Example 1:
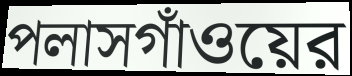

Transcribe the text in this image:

পলাসগাঁওয়ের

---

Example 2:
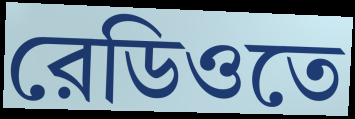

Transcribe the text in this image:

রেডিওতে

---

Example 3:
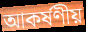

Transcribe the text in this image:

আকর্ষণীয়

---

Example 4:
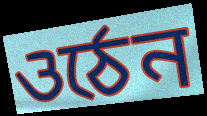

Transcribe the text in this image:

ওঠেন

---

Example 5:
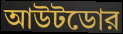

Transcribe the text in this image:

আউটডোর